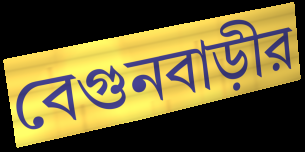
বেগুনবাড়ীর